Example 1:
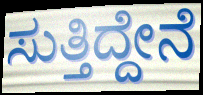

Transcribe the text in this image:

ಸುತ್ತಿದ್ದೇನೆ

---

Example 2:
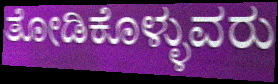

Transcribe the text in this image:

ತೋಡಿಕೊಳ್ಳುವರು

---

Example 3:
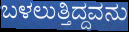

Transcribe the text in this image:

ಬಳಲುತ್ತಿದ್ದವನು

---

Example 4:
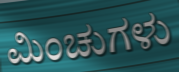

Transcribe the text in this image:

ಮಿಂಚುಗಳು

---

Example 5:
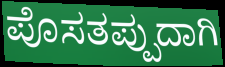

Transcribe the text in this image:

ಪೊಸತಪ್ಪುದಾಗಿ